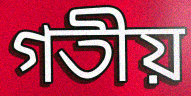
গতীয়